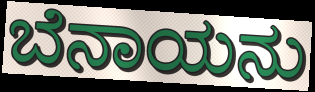
ಬೆನಾಯನು